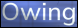
Owing